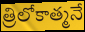
త్రిలోకాత్మనే